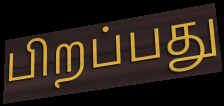
பிறப்பது